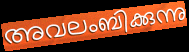
അവലംബിക്കുന്നു